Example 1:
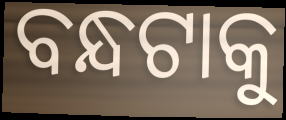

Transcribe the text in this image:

ବନ୍ଧଟାକୁ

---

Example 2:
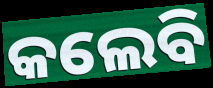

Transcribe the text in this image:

କଲେବି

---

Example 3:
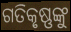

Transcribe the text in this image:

ଗତିକୃଷ୍ଣଙ୍କୁ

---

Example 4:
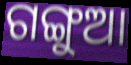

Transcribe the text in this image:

ଗଙ୍ଗୁଆ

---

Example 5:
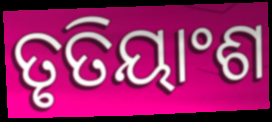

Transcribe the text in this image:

ତୃତିୟାଂଶ